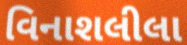
વિનાશલીલા